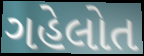
ગહેલોત